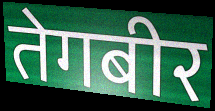
तेगबीर